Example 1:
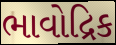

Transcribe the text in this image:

ભાવોદ્રિક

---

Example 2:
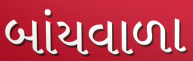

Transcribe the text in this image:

બાંયવાળા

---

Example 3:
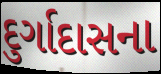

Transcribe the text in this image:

દુર્ગાદાસના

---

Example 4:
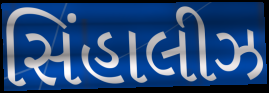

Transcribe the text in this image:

સિંહાલીઝ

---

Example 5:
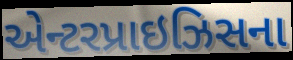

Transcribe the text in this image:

એન્ટરપ્રાઇઝિસના